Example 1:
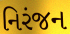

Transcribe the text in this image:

નિરંજન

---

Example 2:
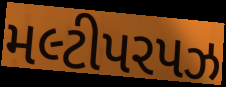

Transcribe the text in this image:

મલ્ટીપરપઝ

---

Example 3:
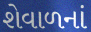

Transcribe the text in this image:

શેવાળનાં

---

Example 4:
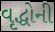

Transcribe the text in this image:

વૃદ્ધોની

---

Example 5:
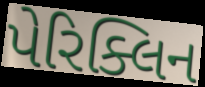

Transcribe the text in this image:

પેરિક્લિન